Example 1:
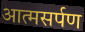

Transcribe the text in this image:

आत्मसर्पण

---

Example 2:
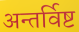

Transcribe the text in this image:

अन्तर्विष्ट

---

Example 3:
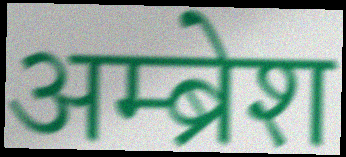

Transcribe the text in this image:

अम्ब्रेश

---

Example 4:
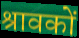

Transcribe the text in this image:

श्रावकों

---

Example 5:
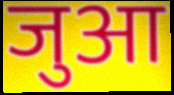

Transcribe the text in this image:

जुआ